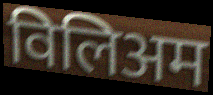
विलिअम